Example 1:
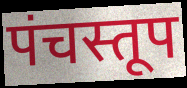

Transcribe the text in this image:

पंचस्तूप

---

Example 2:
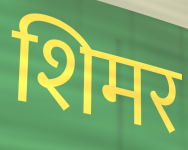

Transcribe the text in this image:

शिमर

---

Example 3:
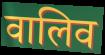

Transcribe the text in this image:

वालिव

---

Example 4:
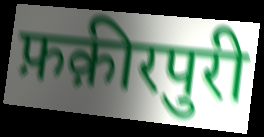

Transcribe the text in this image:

फ़क़ीरपुरी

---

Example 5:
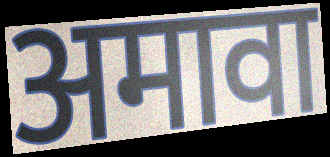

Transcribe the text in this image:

अमावा